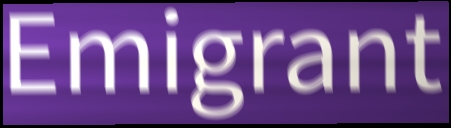
Emigrant